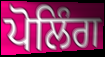
ਪੋਲਿੰਗ